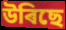
উৰিছে